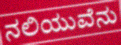
ನಲಿಯುವೆನು